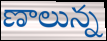
ణాలున్న